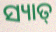
ସ୍ୟାତ୍